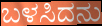
ಬಳಸಿದನು